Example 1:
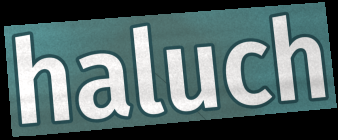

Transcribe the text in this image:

haluch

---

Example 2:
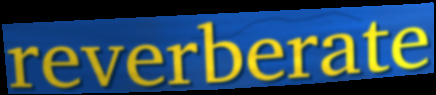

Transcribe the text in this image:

reverberate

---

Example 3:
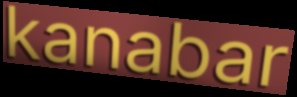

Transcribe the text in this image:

kanabar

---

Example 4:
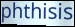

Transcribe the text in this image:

phthisis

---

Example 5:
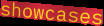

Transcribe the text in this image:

showcases